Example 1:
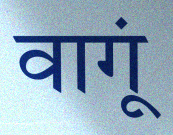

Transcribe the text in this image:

वागूं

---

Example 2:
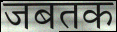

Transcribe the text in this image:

जबतक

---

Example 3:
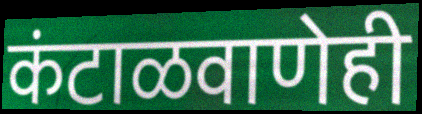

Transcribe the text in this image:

कंटाळवाणेही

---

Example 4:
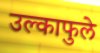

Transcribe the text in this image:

उल्काफुले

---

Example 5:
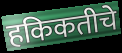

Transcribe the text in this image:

हकिकतीचे